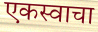
एकस्वाचा